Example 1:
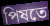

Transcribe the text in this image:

পিষতে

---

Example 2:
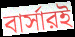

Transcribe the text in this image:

বার্সারই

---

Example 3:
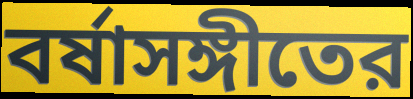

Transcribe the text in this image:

বর্ষাসঙ্গীতের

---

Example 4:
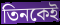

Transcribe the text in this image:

তিনকেই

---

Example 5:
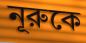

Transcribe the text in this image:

নূরুকে